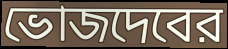
ভোজদেবের